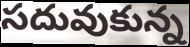
సదువుకున్న